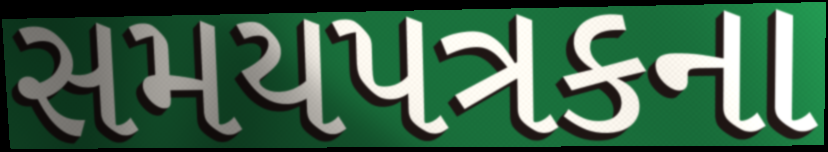
સમયપત્રકના